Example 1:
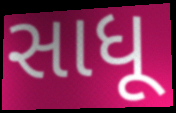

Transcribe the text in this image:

સાધૂ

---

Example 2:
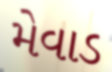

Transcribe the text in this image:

મેવાડ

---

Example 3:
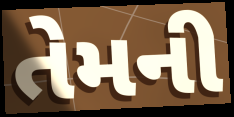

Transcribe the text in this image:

તેમની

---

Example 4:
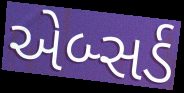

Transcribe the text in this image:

એબ્સર્ડ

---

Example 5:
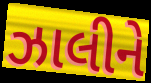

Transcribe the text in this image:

ઝાલીને